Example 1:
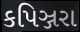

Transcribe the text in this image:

કપિઞ્જરા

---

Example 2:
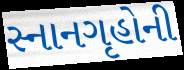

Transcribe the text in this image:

સ્નાનગૃહોની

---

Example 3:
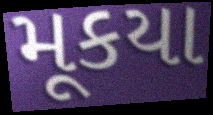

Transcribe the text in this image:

મૂકયા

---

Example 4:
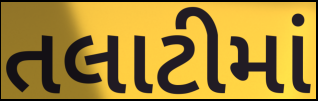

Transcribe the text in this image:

તલાટીમાં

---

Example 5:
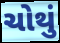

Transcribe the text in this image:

ચોથું